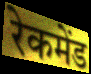
रेकमेंड